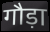
गौड़ा